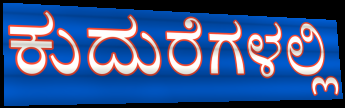
ಕುದುರೆಗಳಲ್ಲಿ